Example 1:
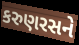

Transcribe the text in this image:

કરુણરસને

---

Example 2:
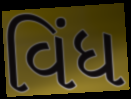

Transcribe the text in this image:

વિંધ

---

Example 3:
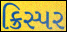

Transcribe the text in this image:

ક્રિસ્પર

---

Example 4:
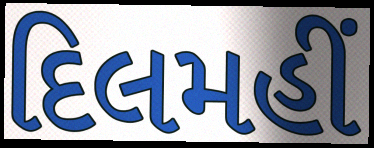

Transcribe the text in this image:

દિલમહીં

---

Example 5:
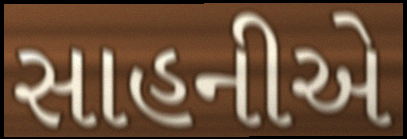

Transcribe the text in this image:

સાહનીએ